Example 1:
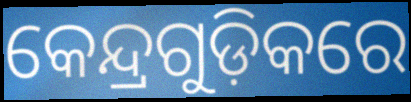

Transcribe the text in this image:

କେନ୍ଦ୍ରଗୁଡ଼ିକରେ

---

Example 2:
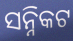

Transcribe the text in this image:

ସନ୍ନିକଟ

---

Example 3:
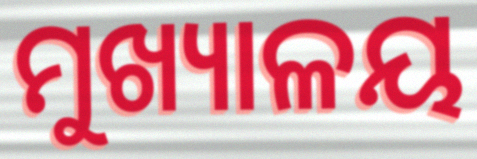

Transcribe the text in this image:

ମୁଖ୍ୟାଳୟ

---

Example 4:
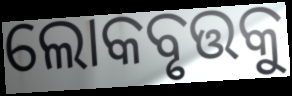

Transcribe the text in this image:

ଲୋକବୃତ୍ତକୁ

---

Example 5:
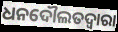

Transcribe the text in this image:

ଧନଦୌଲତଦ୍ଵାରା